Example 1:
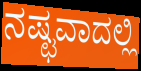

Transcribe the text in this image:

ನಷ್ಟವಾದಲ್ಲಿ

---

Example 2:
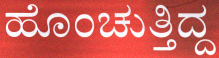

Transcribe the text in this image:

ಹೊಂಚುತ್ತಿದ್ದ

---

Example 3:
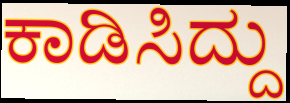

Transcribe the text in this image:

ಕಾಡಿಸಿದ್ದು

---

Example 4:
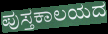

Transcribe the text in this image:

ಪುಸ್ತಕಾಲಯದ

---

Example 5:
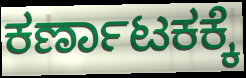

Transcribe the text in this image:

ಕರ್ಣಾಟಕಕ್ಕೆ